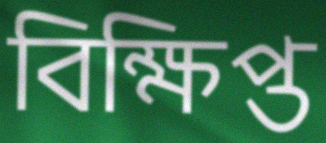
বিক্ষিপ্ত